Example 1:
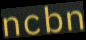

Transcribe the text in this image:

ncbn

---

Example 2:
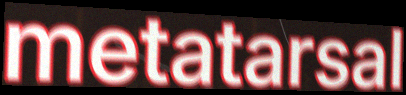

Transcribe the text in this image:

metatarsal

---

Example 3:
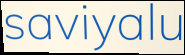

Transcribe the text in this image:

saviyalu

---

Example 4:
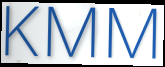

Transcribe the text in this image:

KMM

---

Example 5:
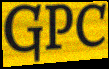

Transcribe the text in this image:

GPC